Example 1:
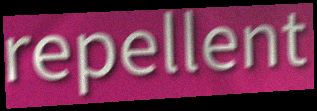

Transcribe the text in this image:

repellent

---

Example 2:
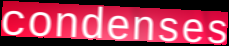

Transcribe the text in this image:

condenses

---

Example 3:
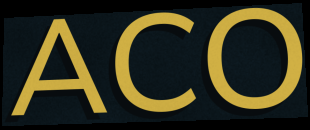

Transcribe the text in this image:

ACO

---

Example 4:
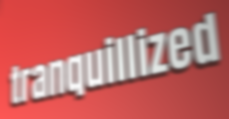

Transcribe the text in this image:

tranquillized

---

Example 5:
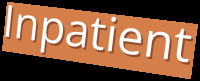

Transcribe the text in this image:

Inpatient